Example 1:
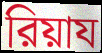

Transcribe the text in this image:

রিয়ায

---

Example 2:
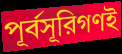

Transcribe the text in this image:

পূর্বসূরিগণই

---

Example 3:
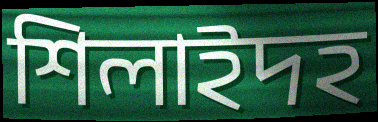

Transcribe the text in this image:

শিলাইদহ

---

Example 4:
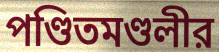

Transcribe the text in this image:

পণ্ডিতমণ্ডলীর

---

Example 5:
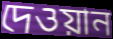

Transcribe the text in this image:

দেওয়ান